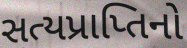
સત્યપ્રાપ્તિનો